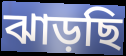
ঝাড়ছি